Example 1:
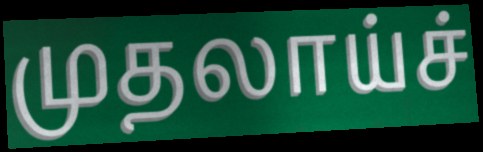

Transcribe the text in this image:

முதலாய்ச்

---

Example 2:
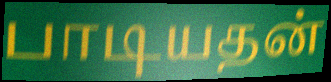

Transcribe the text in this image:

பாடியதன்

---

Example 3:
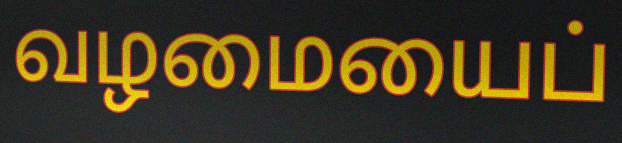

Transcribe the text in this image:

வழமையைப்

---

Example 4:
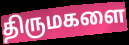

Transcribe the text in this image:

திருமகளை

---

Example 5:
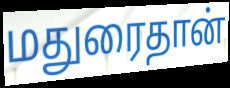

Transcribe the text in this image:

மதுரைதான்